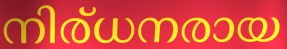
നിര്ധനരായ